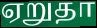
ஏறுதா